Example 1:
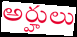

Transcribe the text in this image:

అర్హులు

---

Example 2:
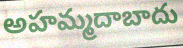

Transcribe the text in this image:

అహమ్మదాబాదు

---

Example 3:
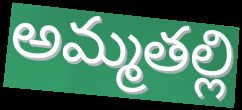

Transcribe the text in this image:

అమ్మతల్లి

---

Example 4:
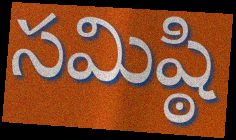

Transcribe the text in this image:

సమిష్ఠి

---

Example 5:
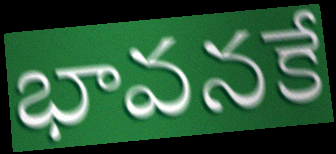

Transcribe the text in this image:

భావనకే